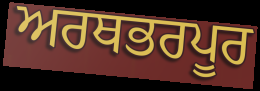
ਅਰਥਭਰਪੂਰ